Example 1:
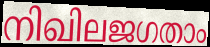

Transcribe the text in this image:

നിഖിലജഗതാം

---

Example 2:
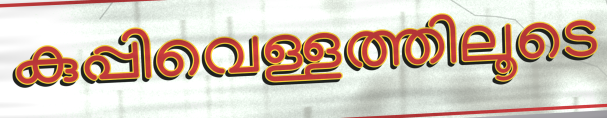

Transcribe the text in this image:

കുപ്പിവെള്ളത്തിലൂടെ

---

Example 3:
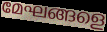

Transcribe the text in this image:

മേഘങ്ങളെ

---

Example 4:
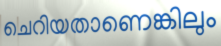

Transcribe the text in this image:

ചെറിയതാണെങ്കിലും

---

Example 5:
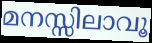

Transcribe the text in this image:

മനസ്സിലാവൂ